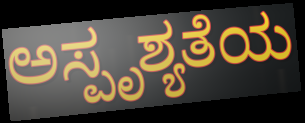
ಅಸ್ಪೃಶ್ಯತೆಯ